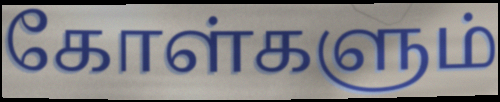
கோள்களும்